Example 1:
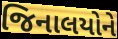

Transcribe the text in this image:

જિનાલયોને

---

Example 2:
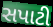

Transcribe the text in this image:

સપાટી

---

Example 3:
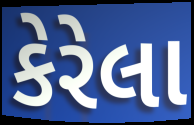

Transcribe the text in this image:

કેરેલા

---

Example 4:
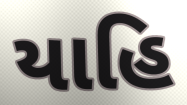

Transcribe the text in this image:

યાહિ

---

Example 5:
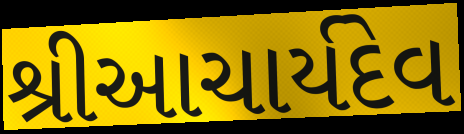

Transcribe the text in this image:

શ્રીઆચાર્યદેવ